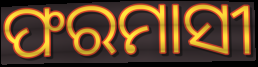
ଫରମାସୀ